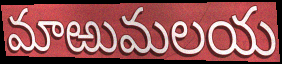
మాఱుమలయ